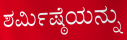
ಶರ್ಮಿಷ್ಠೆಯನ್ನು